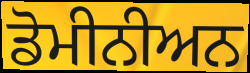
ਡੋਮੀਨੀਅਨ